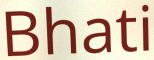
Bhati